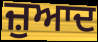
ਜ਼ੁਆਦ